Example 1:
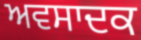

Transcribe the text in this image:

ਅਵਸਾਦਕ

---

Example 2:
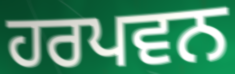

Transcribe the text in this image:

ਹਰਪਵਨ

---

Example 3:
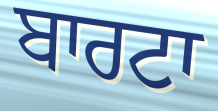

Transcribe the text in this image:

ਬਾਰਟਾ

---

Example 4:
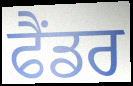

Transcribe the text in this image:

ਫੈਂਡਰ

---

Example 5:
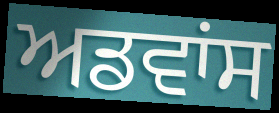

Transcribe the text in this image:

ਅਡਵਾਂਸ